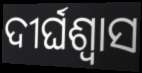
ଦୀର୍ଘଶ୍ଵାସ